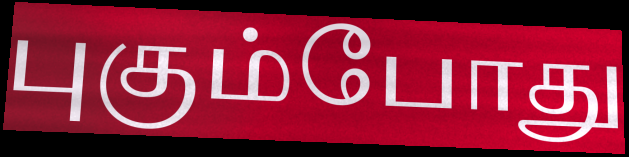
புகும்போது